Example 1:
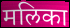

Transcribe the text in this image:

मलिका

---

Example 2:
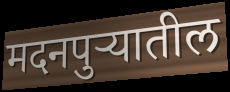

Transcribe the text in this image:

मदनपुऱ्यातील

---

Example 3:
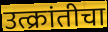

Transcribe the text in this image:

उत्क्रांतीचा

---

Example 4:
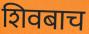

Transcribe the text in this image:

शिवबाच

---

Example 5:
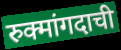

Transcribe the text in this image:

रुक्मांगदाची